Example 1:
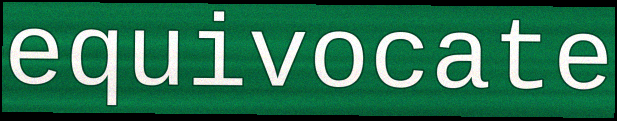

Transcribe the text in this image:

equivocate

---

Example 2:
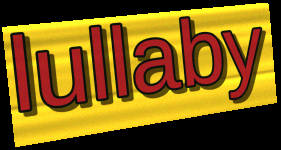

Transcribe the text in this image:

lullaby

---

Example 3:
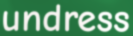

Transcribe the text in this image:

undress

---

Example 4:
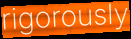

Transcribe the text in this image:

rigorously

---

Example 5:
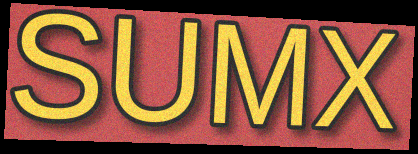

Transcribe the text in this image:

SUMX